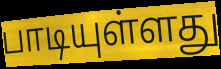
பாடியுள்ளது